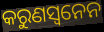
କରୁଣସ୍ଵନେନ